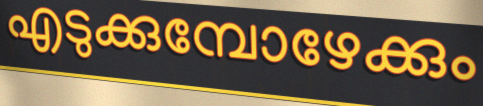
എടുക്കുമ്പോഴേക്കും